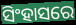
ସିଂହାସରେ